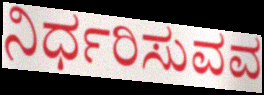
ನಿರ್ಧರಿಸುವವ